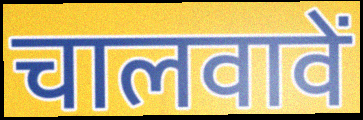
चालवावें